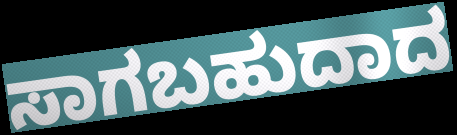
ಸಾಗಬಹುದಾದ